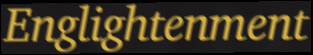
Englightenment